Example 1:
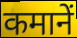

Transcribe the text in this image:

कमानें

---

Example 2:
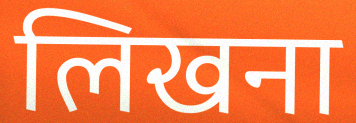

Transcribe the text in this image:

लिखना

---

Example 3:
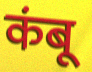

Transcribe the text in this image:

कंबू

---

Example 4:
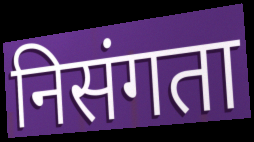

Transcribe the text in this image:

निसंगता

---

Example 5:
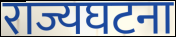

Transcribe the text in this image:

राज्यघटना